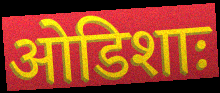
ओडिशाः